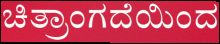
ಚಿತ್ರಾಂಗದೆಯಿಂದ